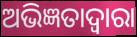
ଅଭିଜ୍ଞତାଦ୍ଵାରା